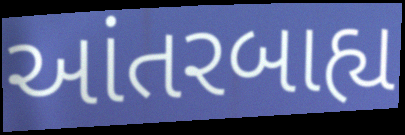
આંતરબાહ્ય